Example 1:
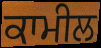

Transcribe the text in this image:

ਕਾਮੀਲ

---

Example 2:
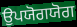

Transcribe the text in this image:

ਉਪਯੋਗਯੋਗ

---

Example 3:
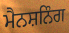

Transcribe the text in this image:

ਮੈਨਸ਼ਨਿੰਗ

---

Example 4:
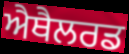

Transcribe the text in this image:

ਐਥੈਲਰਡ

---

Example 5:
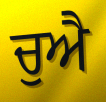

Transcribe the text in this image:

ਚੁਐ